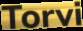
Torvi